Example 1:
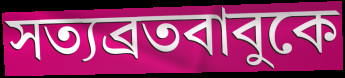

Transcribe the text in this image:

সত্যব্রতবাবুকে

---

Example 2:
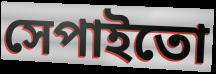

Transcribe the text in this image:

সেপাইতো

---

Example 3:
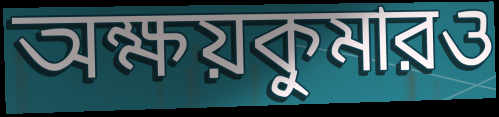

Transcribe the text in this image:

অক্ষয়কুমারও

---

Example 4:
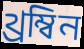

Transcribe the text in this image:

থ্রম্বিন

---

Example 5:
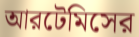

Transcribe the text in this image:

আরটেমিসের